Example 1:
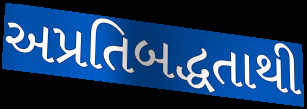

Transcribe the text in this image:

અપ્રતિબદ્ધતાથી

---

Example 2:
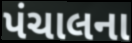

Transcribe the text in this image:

પંચાલના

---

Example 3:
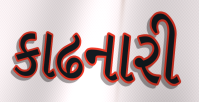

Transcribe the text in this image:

કાઢનારી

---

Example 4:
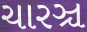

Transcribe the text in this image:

ચારઞ્ચ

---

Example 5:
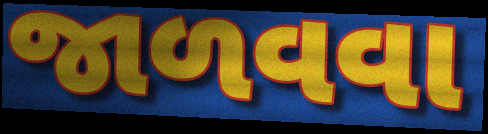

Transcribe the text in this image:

જાળવવા